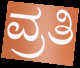
ವ್ರತಿ